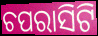
ଚପରାସିଟି